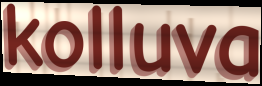
kolluva